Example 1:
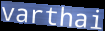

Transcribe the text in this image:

varthai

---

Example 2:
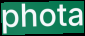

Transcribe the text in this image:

phota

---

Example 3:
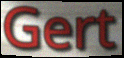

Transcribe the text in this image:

Gert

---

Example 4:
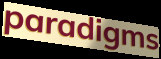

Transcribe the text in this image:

paradigms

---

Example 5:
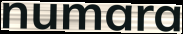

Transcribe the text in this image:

numara